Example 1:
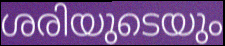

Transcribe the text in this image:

ശരിയുടെയും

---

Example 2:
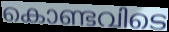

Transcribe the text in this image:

കൊണ്ടവിടെ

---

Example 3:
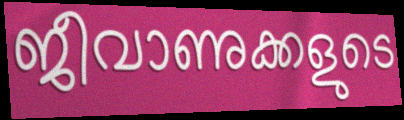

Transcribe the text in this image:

ജീവാണുക്കളുടെ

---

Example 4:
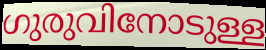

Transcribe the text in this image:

ഗുരുവിനോടുള്ള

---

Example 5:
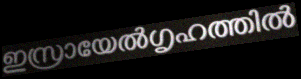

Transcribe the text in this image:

ഇസ്രായേൽഗൃഹത്തിൽ